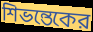
শিভন্তেকের